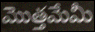
మొత్తమేమీ